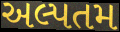
અલ્પતમ